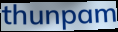
thunpam